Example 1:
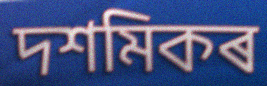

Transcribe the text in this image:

দশমিকৰ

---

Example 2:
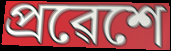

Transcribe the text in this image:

প্ৰৱেশে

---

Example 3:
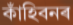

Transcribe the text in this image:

কাঁহিবনৰ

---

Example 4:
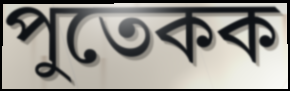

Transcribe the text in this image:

পুতেকক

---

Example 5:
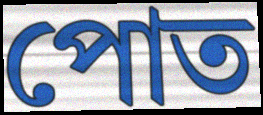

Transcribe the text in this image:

পোত